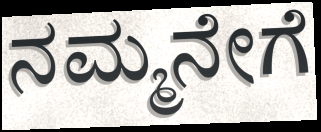
ನಮ್ಮನೇಗೆ